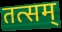
तत्सम्